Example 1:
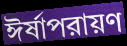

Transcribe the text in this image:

ঈর্ষাপরায়ণ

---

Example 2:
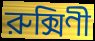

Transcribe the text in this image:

রুক্সিণী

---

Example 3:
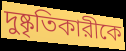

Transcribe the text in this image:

দুষ্কৃতিকারীকে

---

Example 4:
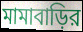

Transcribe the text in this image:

মামাবাড়ির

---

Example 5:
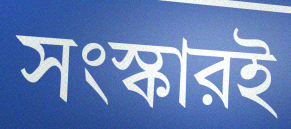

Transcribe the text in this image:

সংস্কারই